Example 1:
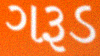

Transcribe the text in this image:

ગરૂડ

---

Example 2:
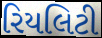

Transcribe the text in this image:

રિયલિટી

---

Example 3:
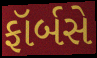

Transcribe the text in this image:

ફૉર્બસે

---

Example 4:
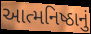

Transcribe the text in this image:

આત્મનિષ્ઠાનું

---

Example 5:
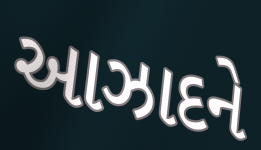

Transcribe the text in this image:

આઝાદને